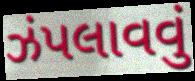
ઝંપલાવવું